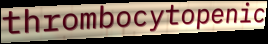
thrombocytopenic